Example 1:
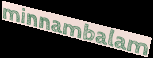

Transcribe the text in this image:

minnambalam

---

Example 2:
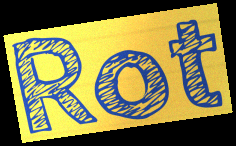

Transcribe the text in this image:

Rot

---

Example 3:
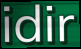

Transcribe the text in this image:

idir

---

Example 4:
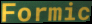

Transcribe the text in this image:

Formic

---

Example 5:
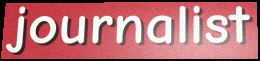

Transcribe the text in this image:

journalist